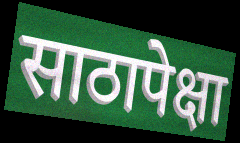
साठापेक्षा